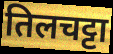
तिलचट्टा